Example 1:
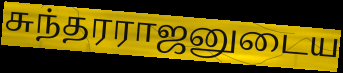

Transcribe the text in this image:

சுந்தரராஜனுடைய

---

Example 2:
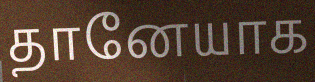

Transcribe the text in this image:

தானேயாக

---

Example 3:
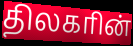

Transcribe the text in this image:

திலகரின்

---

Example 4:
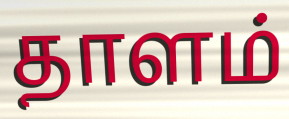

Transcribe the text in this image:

தாளம்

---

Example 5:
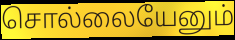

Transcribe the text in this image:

சொல்லையேனும்